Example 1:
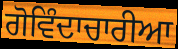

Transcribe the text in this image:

ਗੋਵਿੰਦਾਚਾਰੀਆ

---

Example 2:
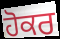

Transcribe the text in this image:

ਹੋਕਰ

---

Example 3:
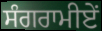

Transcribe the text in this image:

ਸੰਗਰਾਮੀਏਂ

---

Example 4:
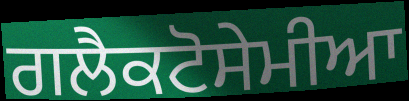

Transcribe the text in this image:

ਗਲੈਕਟੋਸੇਮੀਆ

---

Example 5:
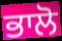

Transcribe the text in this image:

ਭਾਲੋ